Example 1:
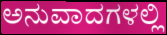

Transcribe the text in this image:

ಅನುವಾದಗಳಲ್ಲಿ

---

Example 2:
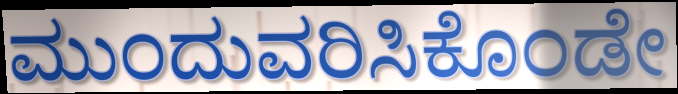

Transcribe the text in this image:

ಮುಂದುವರಿಸಿಕೊಂಡೇ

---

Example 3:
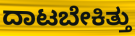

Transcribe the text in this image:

ದಾಟಬೇಕಿತ್ತು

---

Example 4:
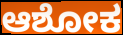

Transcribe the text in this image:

ಆಶೋಕ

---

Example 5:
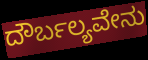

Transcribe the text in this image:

ದೌರ್ಬಲ್ಯವೇನು